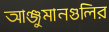
আঞ্জুমানগুলির